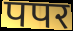
पपर